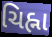
ચિહ્ના